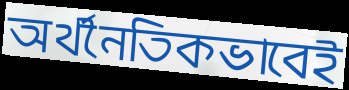
অর্থনৈতিকভাবেই